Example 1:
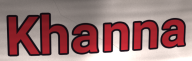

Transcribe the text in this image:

Khanna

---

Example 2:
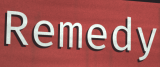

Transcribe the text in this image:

Remedy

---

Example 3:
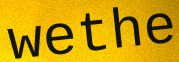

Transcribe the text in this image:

wethe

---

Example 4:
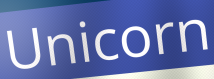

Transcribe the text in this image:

Unicorn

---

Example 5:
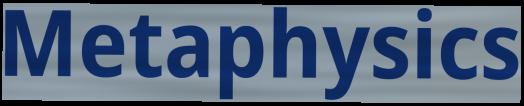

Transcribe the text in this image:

Metaphysics